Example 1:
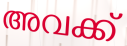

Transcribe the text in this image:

അവക്ക്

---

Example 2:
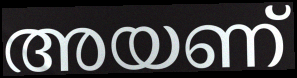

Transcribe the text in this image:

അയണ്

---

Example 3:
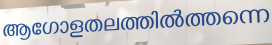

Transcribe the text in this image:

ആഗോളതലത്തിൽത്തന്നെ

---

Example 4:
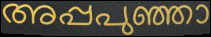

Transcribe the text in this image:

അപ്പപുഞ്ഞാ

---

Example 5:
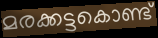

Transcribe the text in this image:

മരക്കട്ടകൊണ്ട്